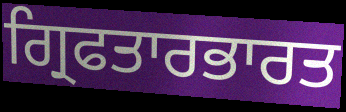
ਗ੍ਰਿਫਤਾਰਭਾਰਤ